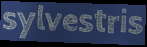
sylvestris